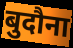
बुदौना